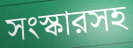
সংস্কারসহ